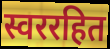
स्वररहित